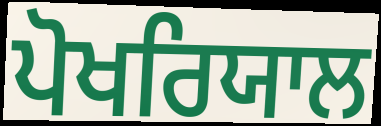
ਪੋਖਰਿਯਾਲ